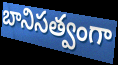
బానిసత్వంగా